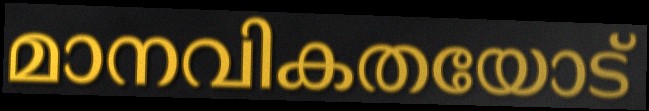
മാനവികതയോട്